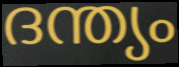
ദന്ത്യം